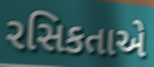
રસિકતાએ